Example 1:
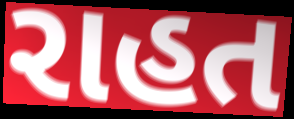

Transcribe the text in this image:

રાહત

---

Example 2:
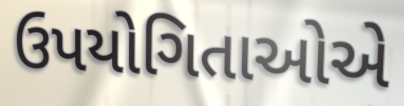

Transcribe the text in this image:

ઉપયોગિતાઓએ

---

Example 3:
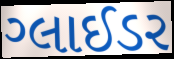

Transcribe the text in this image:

ગ્લાઈડર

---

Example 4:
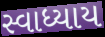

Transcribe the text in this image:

સ્વાધ્યાય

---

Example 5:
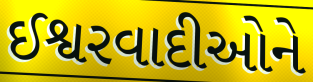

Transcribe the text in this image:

ઈશ્વરવાદીઓને